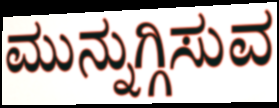
ಮುನ್ನುಗ್ಗಿಸುವ